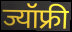
ज्यॉफ्री